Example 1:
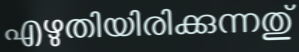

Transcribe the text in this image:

എഴുതിയിരിക്കുന്നതു്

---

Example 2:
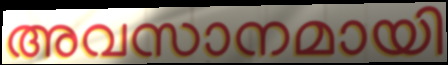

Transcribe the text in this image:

അവസാനമായി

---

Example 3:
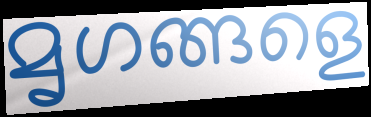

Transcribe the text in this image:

മൃഗങ്ങളെ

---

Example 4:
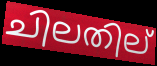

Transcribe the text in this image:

ചിലതില്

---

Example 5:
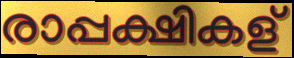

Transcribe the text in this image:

രാപ്പക്ഷികള്